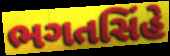
ભગતસિંહે